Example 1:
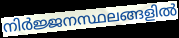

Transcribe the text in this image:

നിർജ്ജനസ്ഥലങ്ങളിൽ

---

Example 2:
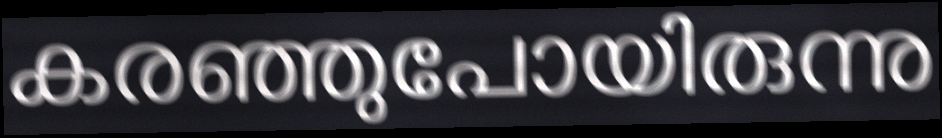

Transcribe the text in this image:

കരഞ്ഞുപോയിരുന്നു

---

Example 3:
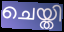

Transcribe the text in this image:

ചെയ്തി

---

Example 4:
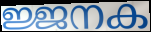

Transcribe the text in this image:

ജ്ജനക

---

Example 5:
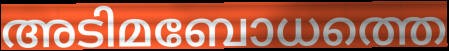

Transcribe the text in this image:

അടിമബോധത്തെ